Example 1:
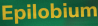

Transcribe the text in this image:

Epilobium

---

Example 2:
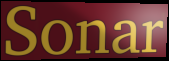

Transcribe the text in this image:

Sonar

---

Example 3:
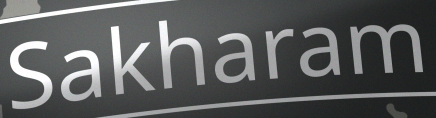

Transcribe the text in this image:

Sakharam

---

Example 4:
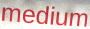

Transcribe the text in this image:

medium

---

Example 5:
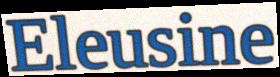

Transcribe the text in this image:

Eleusine